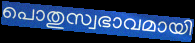
പൊതുസ്വഭാവമായി